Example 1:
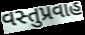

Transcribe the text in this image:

વસ્તુપ્રવાહ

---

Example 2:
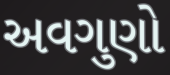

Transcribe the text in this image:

અવગુણો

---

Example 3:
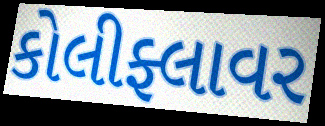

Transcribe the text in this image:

કોલીફ્લાવર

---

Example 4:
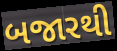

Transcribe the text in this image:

બજારથી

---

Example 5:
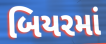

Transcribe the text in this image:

બિયરમાં